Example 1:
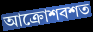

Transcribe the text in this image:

আক্রোশবশত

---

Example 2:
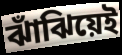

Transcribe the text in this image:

ঝাঁঝিয়েই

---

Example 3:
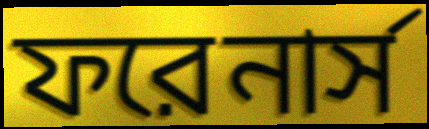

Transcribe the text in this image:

ফরেনার্স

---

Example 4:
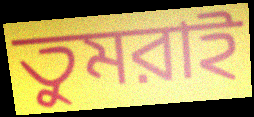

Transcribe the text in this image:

তুমরাই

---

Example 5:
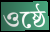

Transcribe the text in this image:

ওষ্ঠে